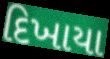
દિખાયા